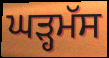
ਘੜ੍ਹਮੱਸ